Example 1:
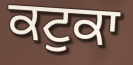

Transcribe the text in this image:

ਕਟੁਕਾ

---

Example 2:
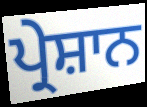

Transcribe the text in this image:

ਪ੍ਰੇਸ਼ਾਨ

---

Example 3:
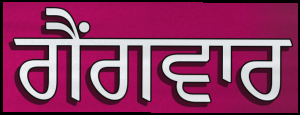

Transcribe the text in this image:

ਗੈਂਗਵਾਰ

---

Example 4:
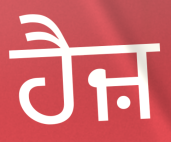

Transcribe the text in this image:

ਹੈਜ਼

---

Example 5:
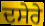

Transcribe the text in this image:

ਦਸੇਰੇ